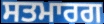
ਸਤਮਾਰਗ